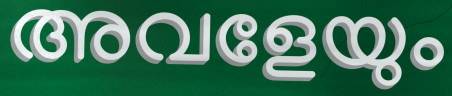
അവളേയും